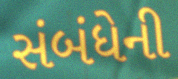
સંબંધેની